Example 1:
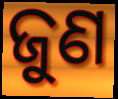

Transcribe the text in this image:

ଜୁଣ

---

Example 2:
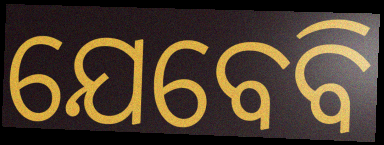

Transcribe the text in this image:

ଯେବେବି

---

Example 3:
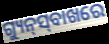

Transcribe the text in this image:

ଗ୍ୟୁନ୍‍ସ୍‍ବାଖରେ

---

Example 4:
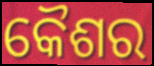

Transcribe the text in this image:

କୈଶର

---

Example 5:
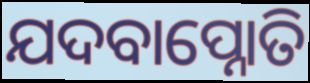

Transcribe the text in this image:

ଯଦବାପ୍ନୋତି